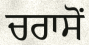
ਚਰਾਸੋਂ